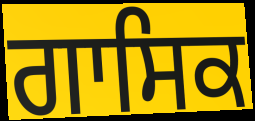
ਗਾਸਿਕ